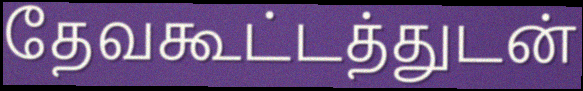
தேவகூட்டத்துடன்